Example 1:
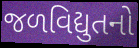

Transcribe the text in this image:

જળવિદ્યુતનો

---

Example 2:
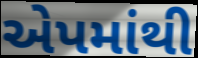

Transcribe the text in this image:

એપમાંથી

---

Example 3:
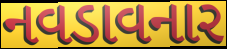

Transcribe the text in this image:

નવડાવનાર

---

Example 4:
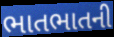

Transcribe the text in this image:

ભાતભાતની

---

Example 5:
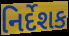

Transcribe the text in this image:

નિર્દેશક